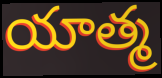
యాత్మ